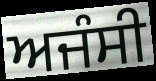
ਅਜੰਸੀ